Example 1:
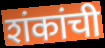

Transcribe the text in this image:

शंकांची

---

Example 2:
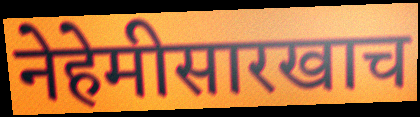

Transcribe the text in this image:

नेहेमीसारखाच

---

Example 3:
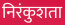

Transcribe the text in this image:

निरंकुशता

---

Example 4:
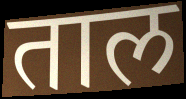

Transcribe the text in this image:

ताल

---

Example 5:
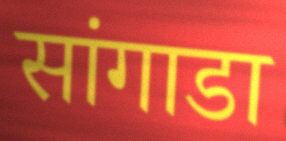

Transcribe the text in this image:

सांगाडा